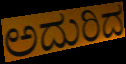
ಅದುರಿದ